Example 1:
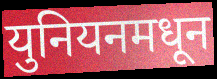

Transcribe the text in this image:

युनियनमधून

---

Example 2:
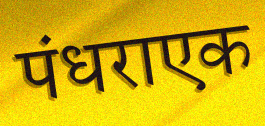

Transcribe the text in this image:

पंधराएक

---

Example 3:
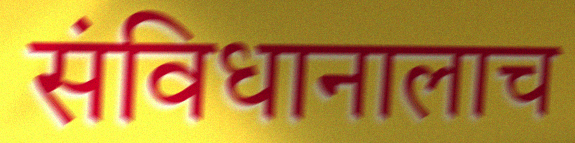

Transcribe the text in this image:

संविधानालाच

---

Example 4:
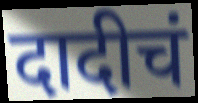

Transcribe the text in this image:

दादीचं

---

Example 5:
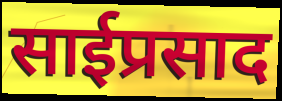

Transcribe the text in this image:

साईप्रसाद